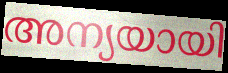
അന്യയായി